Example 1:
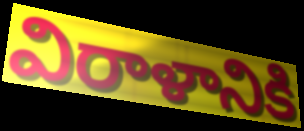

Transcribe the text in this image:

విరాళానికి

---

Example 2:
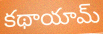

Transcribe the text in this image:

కథాయామ్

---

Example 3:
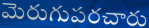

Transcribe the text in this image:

మెరుగుపరచారు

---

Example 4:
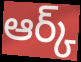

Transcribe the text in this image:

ఆర్క్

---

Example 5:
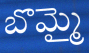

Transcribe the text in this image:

బొమ్మై